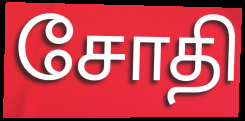
சோதி